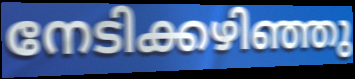
നേടിക്കഴിഞ്ഞു